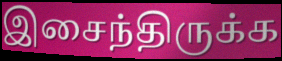
இசைந்திருக்க